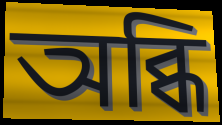
অব্ধি